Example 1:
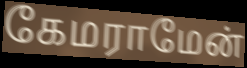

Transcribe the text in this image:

கேமராமேன்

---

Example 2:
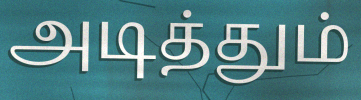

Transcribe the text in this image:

அடித்தும்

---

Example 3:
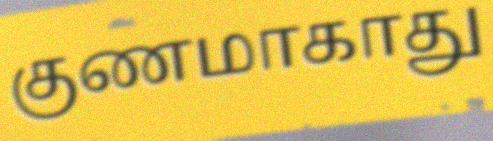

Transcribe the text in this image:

குணமாகாது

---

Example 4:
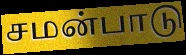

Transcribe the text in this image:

சமன்பாடு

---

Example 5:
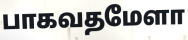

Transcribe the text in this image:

பாகவதமேளா